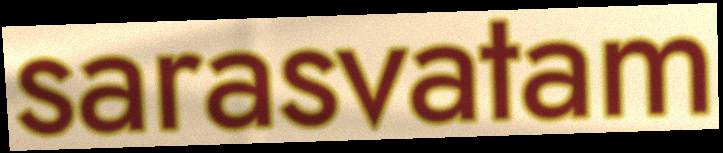
sarasvatam